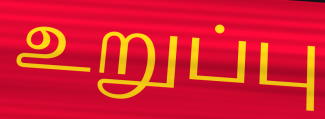
உறுப்பு